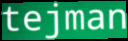
tejman